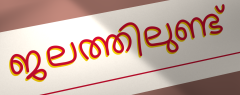
ജലത്തിലുണ്ട്